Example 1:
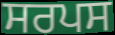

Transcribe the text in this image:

ਸਰਪਸ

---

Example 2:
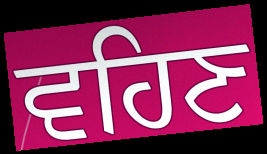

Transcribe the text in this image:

ਵਹਿਣ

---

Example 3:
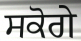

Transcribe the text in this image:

ਸਕੋਗੇ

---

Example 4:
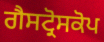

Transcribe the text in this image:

ਗੈਸਟ੍ਰੋਸਕੋਪ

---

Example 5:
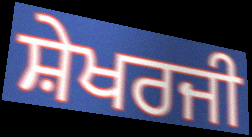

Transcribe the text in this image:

ਸ਼ੇਖਰਜੀ